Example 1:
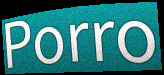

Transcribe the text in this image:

Porro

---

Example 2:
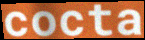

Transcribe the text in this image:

cocta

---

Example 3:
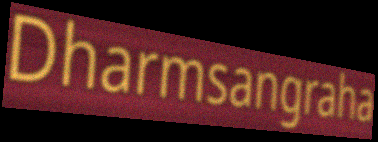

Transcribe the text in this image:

Dharmsangraha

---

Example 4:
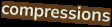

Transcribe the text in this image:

compressions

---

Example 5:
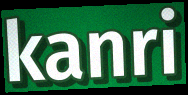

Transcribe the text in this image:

kanri